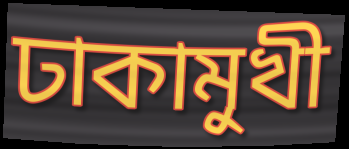
ঢাকামুখী